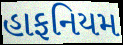
હાફનિયમ